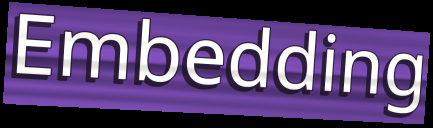
Embedding